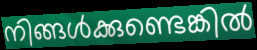
നിങ്ങൾക്കുണ്ടെങ്കിൽ